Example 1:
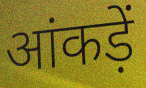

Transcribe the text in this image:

आंकड़ें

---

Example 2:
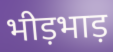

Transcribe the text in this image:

भीड़भाड़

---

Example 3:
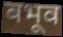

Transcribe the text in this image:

बभूव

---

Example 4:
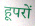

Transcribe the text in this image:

हूपरों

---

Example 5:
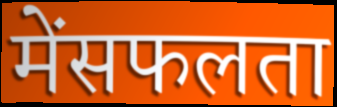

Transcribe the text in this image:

मेंसफलता